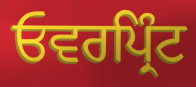
ਓਵਰਪ੍ਰਿੰਟ